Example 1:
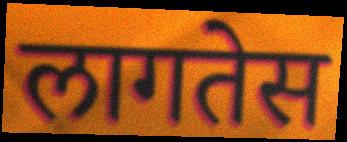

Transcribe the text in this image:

लागतेस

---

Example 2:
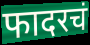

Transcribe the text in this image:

फादरचं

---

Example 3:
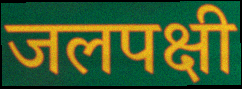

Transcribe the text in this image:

जलपक्षी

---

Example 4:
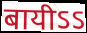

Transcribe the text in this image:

बायीऽऽ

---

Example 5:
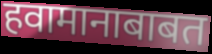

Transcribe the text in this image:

हवामानाबाबत